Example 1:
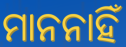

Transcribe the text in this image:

ମାନନାହିଁ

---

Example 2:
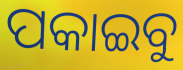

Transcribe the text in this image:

ପକାଇବୁ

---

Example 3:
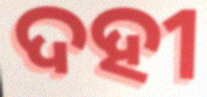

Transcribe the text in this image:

ଦହୀ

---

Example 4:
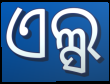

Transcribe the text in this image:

ଏଲ୍ସ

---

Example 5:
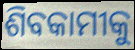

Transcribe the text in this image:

ଶିବକାମୀକୁ